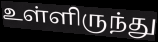
உள்ளிருந்து